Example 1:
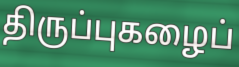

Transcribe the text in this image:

திருப்புகழைப்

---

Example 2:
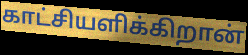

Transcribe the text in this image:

காட்சியளிக்கிறான்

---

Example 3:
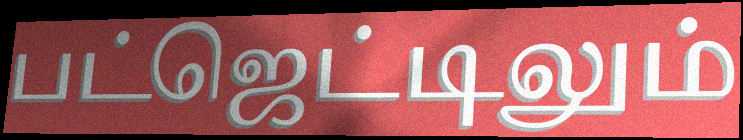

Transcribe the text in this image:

பட்ஜெட்டிலும்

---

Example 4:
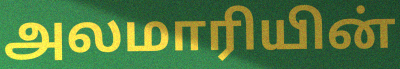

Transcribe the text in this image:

அலமாரியின்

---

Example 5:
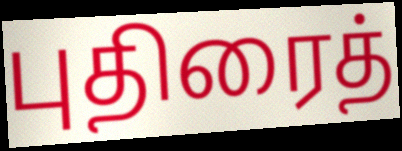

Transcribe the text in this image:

புதிரைத்